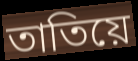
তাতিয়ে